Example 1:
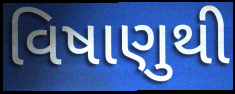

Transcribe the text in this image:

વિષાણુથી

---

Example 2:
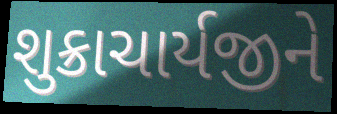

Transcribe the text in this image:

શુક્રાચાર્યજીને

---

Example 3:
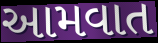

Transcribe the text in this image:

આમવાત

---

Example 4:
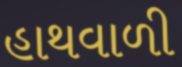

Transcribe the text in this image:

હાથવાળી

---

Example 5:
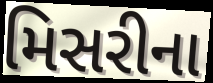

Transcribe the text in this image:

મિસરીના